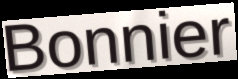
Bonnier